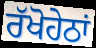
ਰੱਖੋਹੇਠਾਂ